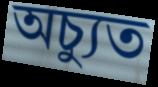
অচ্যুত